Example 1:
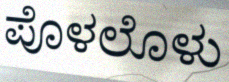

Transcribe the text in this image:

ಪೊಳಲೊಳು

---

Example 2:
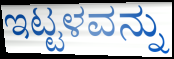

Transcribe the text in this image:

ಇಟ್ಟಳವನ್ನು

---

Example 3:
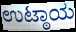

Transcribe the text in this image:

ಉಟ್ಠಾಯ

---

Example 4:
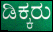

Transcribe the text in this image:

ಡಿಕ್ಕರು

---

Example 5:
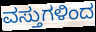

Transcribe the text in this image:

ವಸ್ತುಗಳಿಂದ